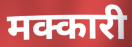
मक्कारी